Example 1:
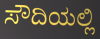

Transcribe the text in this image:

ಸೌದಿಯಲ್ಲಿ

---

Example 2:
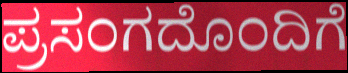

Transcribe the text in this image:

ಪ್ರಸಂಗದೊಂದಿಗೆ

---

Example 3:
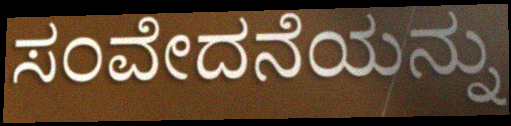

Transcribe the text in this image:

ಸಂವೇದನೆಯನ್ನು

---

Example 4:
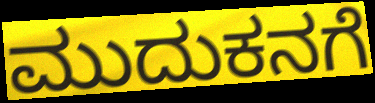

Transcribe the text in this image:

ಮುದುಕನಗೆ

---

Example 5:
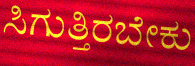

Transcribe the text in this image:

ಸಿಗುತ್ತಿರಬೇಕು